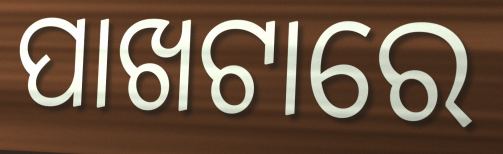
ପାଖଟାରେ